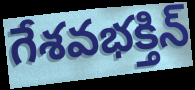
గేశవభక్తిన్